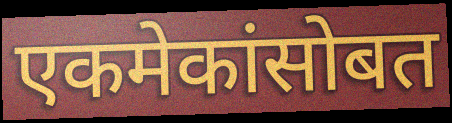
एकमेकांसोबत